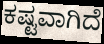
ಕಷ್ಟವಾಗಿದೆ